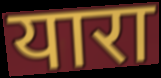
यारा